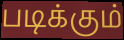
படிக்கும்